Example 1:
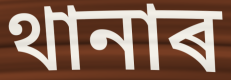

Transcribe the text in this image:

থানাৰ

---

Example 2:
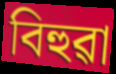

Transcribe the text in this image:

বিহুৱা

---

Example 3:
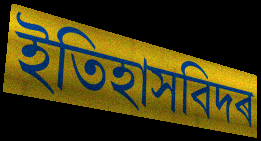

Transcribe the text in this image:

ইতিহাসবিদৰ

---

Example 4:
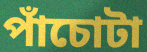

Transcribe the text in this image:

পাঁচোটা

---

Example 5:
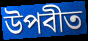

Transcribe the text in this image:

উপবীত